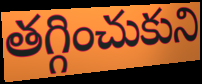
తగ్గించుకుని